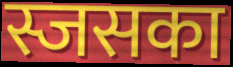
स्जसका